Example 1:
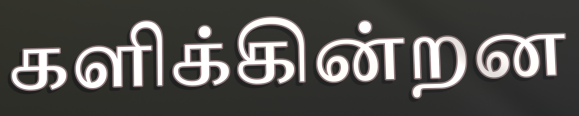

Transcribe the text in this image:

களிக்கின்றன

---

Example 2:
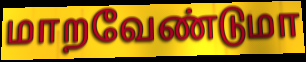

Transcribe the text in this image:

மாறவேண்டுமா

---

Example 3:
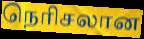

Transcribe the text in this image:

நெரிசலான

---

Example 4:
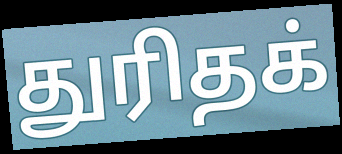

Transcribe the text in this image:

துரிதக்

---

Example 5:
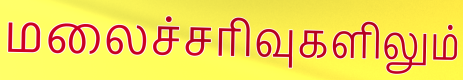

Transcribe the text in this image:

மலைச்சரிவுகளிலும்